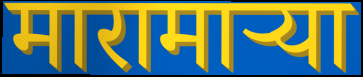
मारामार्‍या